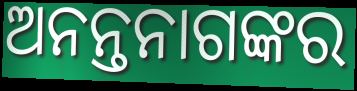
ଅନନ୍ତନାଗଙ୍କର